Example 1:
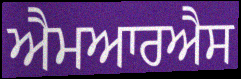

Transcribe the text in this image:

ਐਮਆਰਐਸ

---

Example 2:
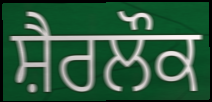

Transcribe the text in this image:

ਸ਼ੈਰਲੌਕ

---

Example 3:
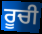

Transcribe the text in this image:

ਰੂਚੀ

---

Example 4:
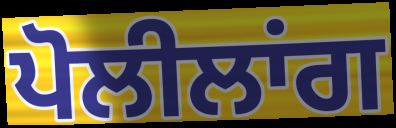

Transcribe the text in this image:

ਪੋਲੀਲਾਂਗ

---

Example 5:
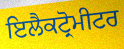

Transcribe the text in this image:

ਇਲੈਕਟ੍ਰੋਮੀਟਰ